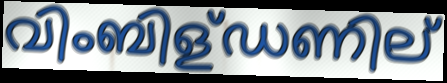
വിംബിള്ഡണില്